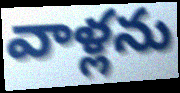
వాళ్లను